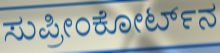
ಸುಪ್ರೀಂಕೋರ್ಟ್‌ನ